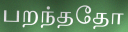
பறந்ததோ